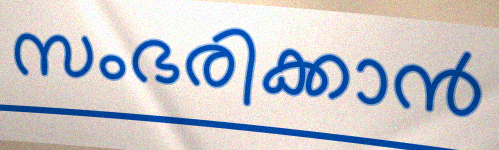
സംഭരിക്കാൻ